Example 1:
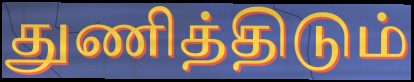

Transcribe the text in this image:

துணித்திடும்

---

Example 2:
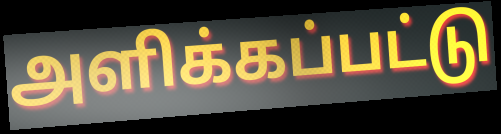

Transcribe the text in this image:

அளிக்கப்பட்டு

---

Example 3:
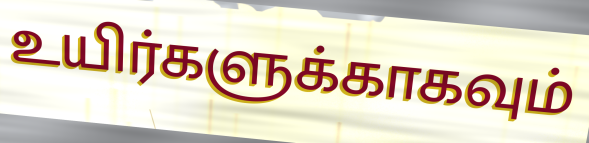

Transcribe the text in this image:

உயிர்களுக்காகவும்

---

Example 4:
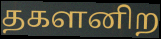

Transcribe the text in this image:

தகளனிற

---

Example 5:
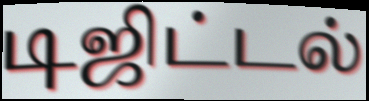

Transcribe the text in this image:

டிஜிட்டல்